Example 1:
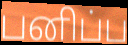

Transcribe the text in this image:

பனிப்ப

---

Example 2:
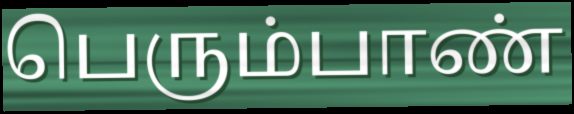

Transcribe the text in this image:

பெரும்பாண்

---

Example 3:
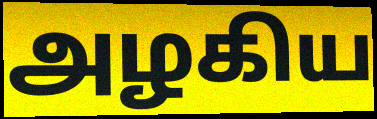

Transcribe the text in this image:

அழகிய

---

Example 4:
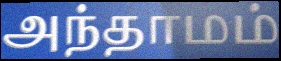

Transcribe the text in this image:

அந்தாமம்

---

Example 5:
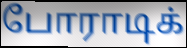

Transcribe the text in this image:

போராடிக்